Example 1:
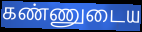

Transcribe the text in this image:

கண்ணுடைய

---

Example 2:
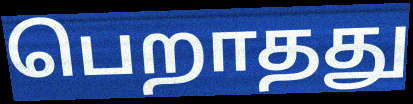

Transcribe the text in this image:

பெறாதது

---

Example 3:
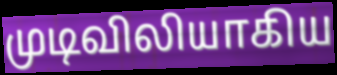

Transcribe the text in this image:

முடிவிலியாகிய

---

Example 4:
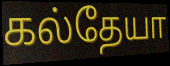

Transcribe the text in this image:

கல்தேயா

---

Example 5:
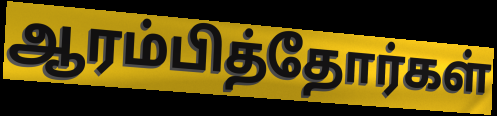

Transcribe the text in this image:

ஆரம்பித்தோர்கள்